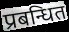
प्रबन्धित